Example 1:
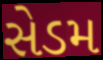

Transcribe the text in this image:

સેડમ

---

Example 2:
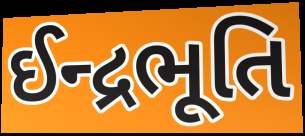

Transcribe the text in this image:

ઈન્દ્રભૂતિ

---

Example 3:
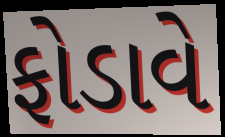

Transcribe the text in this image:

ફોડાવે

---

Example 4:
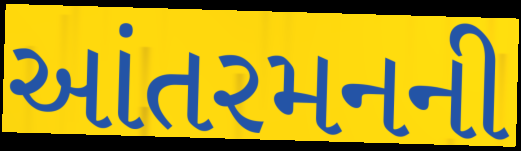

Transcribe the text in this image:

આંતરમનની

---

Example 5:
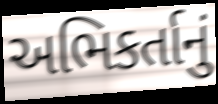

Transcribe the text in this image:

અભિકર્તાનું